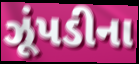
ઝૂંપડીના